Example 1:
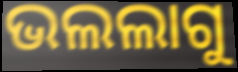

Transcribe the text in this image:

ଭଲଲାଗୁ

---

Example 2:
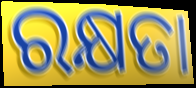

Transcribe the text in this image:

ରକ୍ଷତା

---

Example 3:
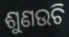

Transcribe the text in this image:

ଶୁଣଉଚି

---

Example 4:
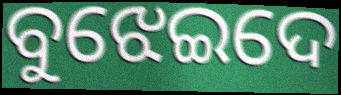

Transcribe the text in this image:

ବୁଝେଇଦେ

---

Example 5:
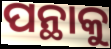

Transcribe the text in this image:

ପନ୍ଥାକୁ